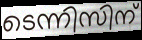
ടെന്നിസിന്